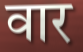
वार